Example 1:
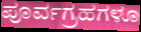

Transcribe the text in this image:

ಪೂರ್ವಗ್ರಹಗಳೂ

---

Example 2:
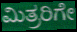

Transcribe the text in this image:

ಮಿತ್ರರಿಗೇ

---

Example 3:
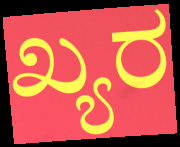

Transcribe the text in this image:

ಖ್ಯರ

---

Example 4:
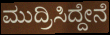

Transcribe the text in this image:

ಮುದ್ರಿಸಿದ್ದೇನೆ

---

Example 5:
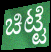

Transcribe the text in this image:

ಚಿಟ್ಟೆ